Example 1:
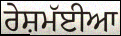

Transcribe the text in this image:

ਰੇਸ਼ਮੱਈਆ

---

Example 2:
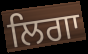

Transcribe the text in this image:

ਲਿਗਾ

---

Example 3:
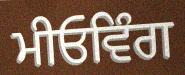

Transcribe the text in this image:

ਮੀਓਵਿੰਗ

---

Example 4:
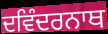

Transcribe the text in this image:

ਦਵਿੰਦਰਨਾਥ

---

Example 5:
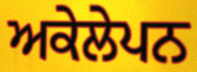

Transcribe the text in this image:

ਅਕੇਲੇਪਨ